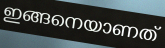
ഇങ്ങനെയാണത്